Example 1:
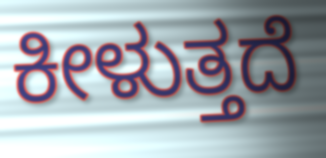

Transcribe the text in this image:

ಕೀಳುತ್ತದೆ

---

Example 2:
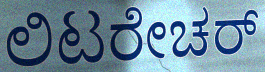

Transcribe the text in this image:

ಲಿಟರೇಚರ್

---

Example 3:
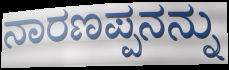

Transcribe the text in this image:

ನಾರಣಪ್ಪನನ್ನು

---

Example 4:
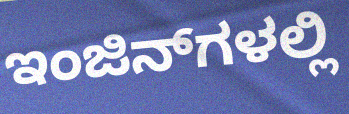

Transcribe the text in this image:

ಇಂಜಿನ್‌ಗಳಲ್ಲಿ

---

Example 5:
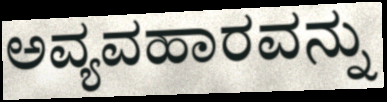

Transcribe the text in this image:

ಅವ್ಯವಹಾರವನ್ನು